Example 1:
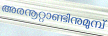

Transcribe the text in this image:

അരനൂറ്റാണ്ടിനുമുമ്പ്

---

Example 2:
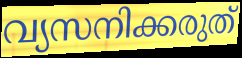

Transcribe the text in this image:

വ്യസനിക്കരുത്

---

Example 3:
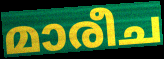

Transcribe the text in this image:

മാരീച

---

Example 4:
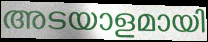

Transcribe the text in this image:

അടയാളമായി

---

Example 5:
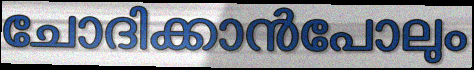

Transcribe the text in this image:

ചോദിക്കാൻപോലും